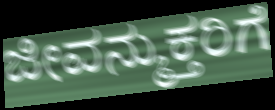
ಜೀವನ್ಮುಕ್ತರಿಗೆ